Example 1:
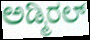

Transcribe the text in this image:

ಅಡ್ಮಿರಲ್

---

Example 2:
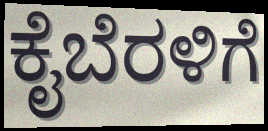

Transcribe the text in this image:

ಕೈಬೆರಳಿಗೆ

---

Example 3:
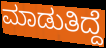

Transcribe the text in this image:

ಮಾಡುತಿದ್ದೆ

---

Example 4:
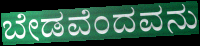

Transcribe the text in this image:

ಬೇಡವೆಂದವನು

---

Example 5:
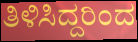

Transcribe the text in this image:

ತಿಳಿಸಿದ್ದರಿಂದ